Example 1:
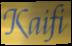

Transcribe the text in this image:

Kaifi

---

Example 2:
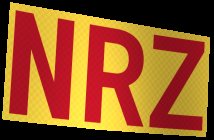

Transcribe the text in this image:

NRZ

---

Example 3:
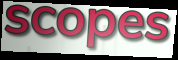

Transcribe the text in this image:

scopes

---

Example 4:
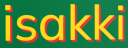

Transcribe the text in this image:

isakki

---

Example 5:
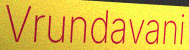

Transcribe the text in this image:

Vrundavani